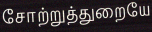
சோற்றுத்துறையே